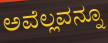
ಅವೆಲ್ಲವನ್ನೂ